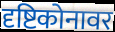
दृष्टिकोनावर